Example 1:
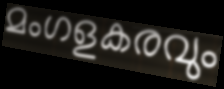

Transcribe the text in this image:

മംഗളകരവും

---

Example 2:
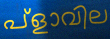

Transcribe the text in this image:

പ്ളാവില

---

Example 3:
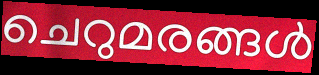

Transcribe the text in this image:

ചെറുമരങ്ങൾ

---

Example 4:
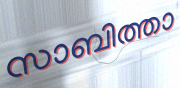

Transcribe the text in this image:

സാബിത്താ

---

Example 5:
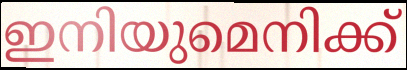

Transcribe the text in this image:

ഇനിയുമെനിക്ക്